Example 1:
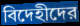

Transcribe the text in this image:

বিদেহীদের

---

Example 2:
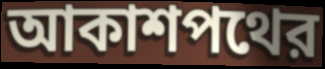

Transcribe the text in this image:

আকাশপথের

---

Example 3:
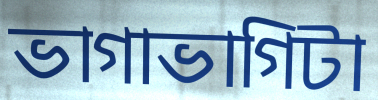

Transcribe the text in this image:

ভাগাভাগিটা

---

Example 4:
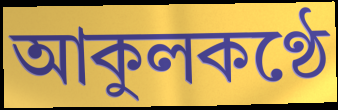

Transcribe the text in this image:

আকুলকণ্ঠে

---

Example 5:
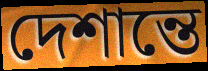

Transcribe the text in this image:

দেশান্তে